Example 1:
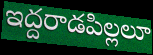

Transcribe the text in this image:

ఇద్దరాడపిల్లలూ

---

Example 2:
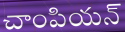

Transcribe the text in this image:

చాంపియన్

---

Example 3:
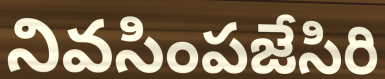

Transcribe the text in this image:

నివసింపజేసిరి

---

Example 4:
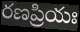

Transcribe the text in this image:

రణప్రియః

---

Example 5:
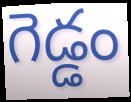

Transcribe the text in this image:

గెడ్డం